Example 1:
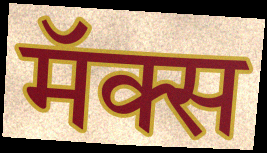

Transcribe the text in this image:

मॅक्स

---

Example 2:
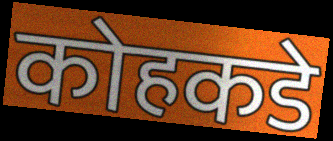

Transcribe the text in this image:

कोहकडे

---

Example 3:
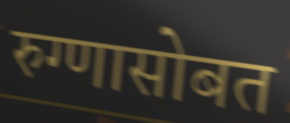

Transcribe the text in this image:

रुग्णासोबत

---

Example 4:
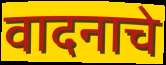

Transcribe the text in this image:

वादनाचे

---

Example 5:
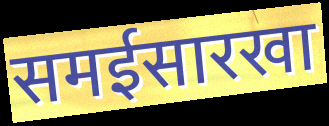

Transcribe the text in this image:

समईसारखा